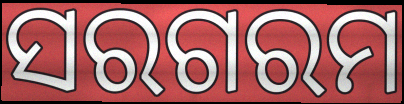
ସରଗରମ